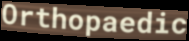
Orthopaedic